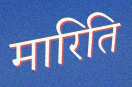
मारिति